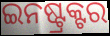
ଇନଷ୍ଟ୍ରକ୍ଟର